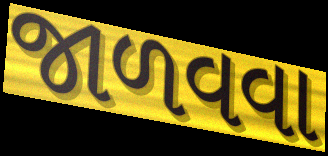
જાળવવા